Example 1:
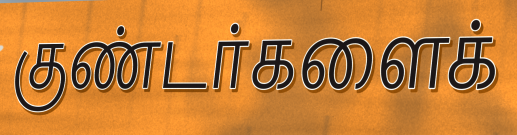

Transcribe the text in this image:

குண்டர்களைக்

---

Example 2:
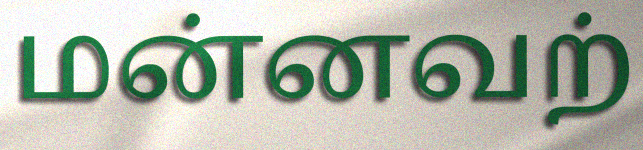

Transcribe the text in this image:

மன்னவற்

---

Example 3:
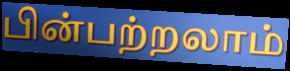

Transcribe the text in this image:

பின்பற்றலாம்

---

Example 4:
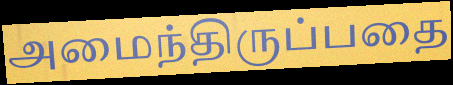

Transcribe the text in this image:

அமைந்திருப்பதை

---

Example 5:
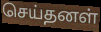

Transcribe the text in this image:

செய்தனள்